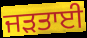
ਜੜਤਾਈ